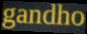
gandho